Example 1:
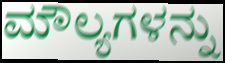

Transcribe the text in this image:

ಮೌಲ್ಯಗಳನ್ನು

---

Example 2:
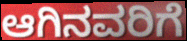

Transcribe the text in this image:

ಆಗಿನವರಿಗೆ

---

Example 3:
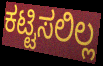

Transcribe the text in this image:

ಕಟ್ಟಿಸಲಿಲ್ಲ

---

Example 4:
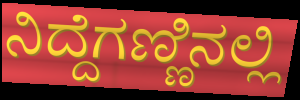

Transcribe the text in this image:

ನಿದ್ದೆಗಣ್ಣಿನಲ್ಲಿ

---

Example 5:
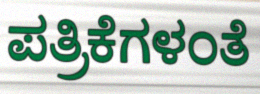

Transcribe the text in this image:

ಪತ್ರಿಕೆಗಳಂತೆ